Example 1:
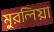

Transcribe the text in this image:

মুরলিয়া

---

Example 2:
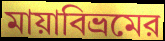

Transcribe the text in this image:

মায়াবিভ্রমের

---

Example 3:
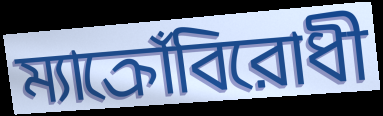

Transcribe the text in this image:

ম্যাক্রোঁবিরোধী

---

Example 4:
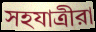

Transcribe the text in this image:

সহযাত্রীরা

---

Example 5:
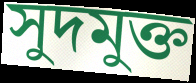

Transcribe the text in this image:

সুদমুক্ত